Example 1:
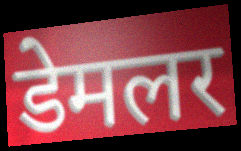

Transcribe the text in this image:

डेमलर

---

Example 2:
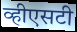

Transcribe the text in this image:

व्हीएसटी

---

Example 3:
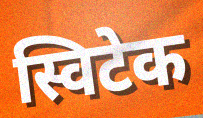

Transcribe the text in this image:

स्विटेक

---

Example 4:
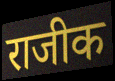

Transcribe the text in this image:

राजीक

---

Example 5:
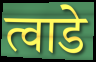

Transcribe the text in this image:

त्वाडे